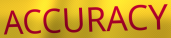
ACCURACY